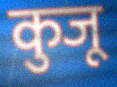
कुजू